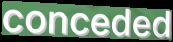
conceded